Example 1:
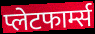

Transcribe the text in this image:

प्लेटफार्म्स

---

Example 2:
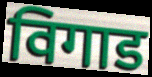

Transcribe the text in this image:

विगाड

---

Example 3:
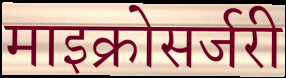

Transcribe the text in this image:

माइक्रोसर्जरी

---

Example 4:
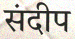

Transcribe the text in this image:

संदीप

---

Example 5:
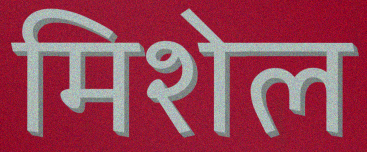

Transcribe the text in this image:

मिशेल